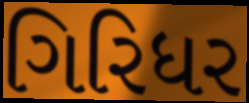
ગિરિધર